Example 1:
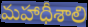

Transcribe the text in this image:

మహాధీశాలి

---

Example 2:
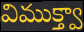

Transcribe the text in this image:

విముక్త్వా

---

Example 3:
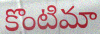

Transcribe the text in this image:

కొంటిమా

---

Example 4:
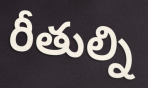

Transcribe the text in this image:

రీతుల్ని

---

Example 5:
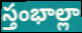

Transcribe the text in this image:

స్తంభాల్లా